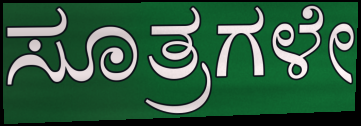
ಸೂತ್ರಗಳೇ